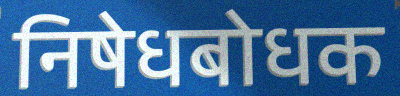
निषेधबोधक